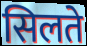
सिलते